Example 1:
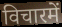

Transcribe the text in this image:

विचारमें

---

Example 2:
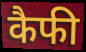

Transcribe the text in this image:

कैफी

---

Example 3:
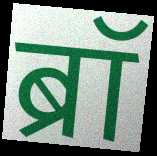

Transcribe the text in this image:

ब्रॉ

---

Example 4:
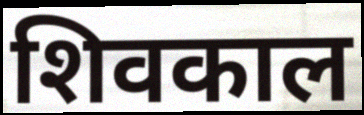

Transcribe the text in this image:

शिवकाल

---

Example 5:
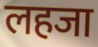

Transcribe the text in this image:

लहजा